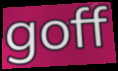
goff